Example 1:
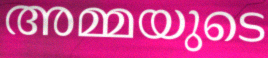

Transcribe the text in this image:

അമ്മയുടെ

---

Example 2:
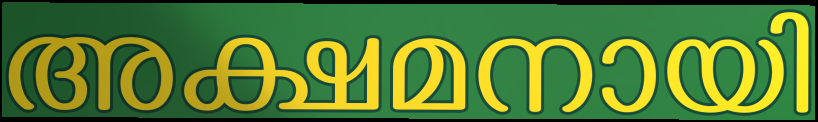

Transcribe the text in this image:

അക്ഷമനായി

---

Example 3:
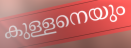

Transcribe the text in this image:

കുള്ളനെയും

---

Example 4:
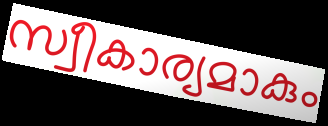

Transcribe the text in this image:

സ്വീകാര്യമാകും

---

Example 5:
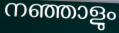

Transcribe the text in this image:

നഞ്ഞാളും